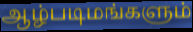
ஆழ்படிமங்களும்